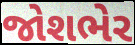
જોશભેર